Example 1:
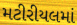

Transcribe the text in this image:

મટીરીયલમાં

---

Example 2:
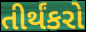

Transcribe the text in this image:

તીર્થંકરો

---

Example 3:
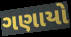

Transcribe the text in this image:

ગણાયો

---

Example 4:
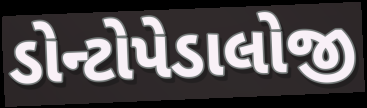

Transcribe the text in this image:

ડોન્ટોપેડાલોજી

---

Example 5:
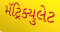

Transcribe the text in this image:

મૅટ્રિક્યુલેટ